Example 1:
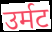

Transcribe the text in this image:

उर्मट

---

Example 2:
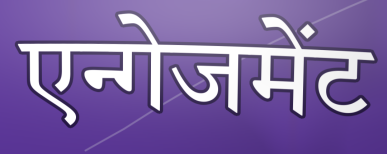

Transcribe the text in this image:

एन्गेजमेंट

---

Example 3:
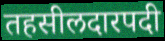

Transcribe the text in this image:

तहसीलदारपदी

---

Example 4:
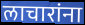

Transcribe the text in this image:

लाचारांना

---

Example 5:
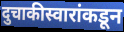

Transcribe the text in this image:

दुचाकीस्वारांकडून